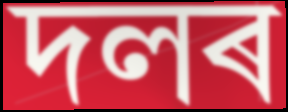
দলৰ